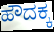
ಹೌದಕ್ಕ